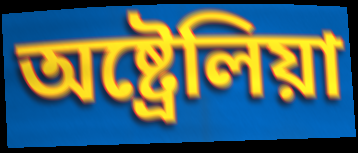
অষ্ট্ৰেলিয়া